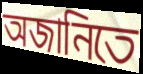
অজানিতে